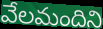
వేలమందిని